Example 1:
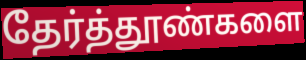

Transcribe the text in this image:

தேர்த்தூண்களை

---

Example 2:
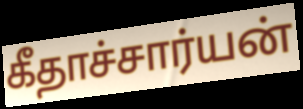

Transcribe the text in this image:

கீதாச்சார்யன்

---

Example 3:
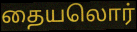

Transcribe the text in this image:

தையலொர்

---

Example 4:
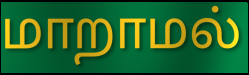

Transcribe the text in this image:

மாறாமல்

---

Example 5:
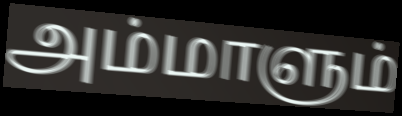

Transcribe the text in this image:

அம்மாளும்